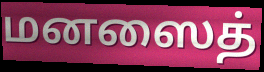
மனஸைத்